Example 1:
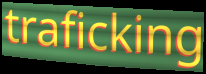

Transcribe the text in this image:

traficking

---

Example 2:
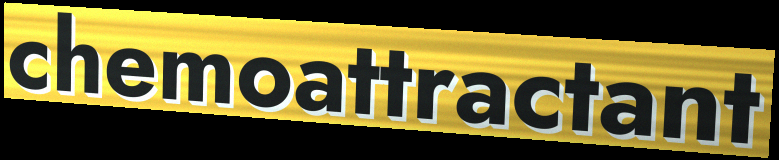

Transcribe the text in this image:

chemoattractant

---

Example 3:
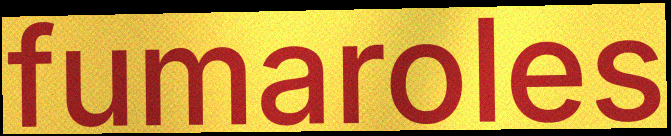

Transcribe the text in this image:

fumaroles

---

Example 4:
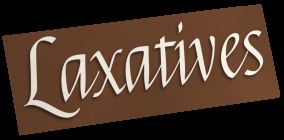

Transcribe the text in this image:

Laxatives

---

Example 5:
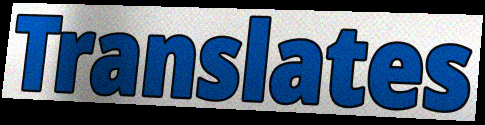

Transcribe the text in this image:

Translates